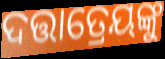
ଦତ୍ତାତ୍ରେୟଙ୍କୁ